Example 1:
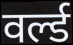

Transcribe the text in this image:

वर्ल्‍ड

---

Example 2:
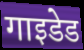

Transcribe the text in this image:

गाइडेड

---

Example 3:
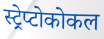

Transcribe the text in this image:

स्ट्रेप्टोकोकल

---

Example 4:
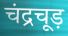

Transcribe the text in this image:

चंद्रचूड़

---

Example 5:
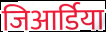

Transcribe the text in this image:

जिआर्डिया